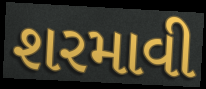
શરમાવી